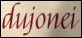
dujonei